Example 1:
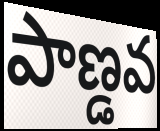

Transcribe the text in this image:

పాణ్డవ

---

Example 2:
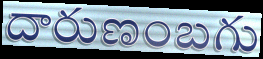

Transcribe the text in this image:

దారుణంబగు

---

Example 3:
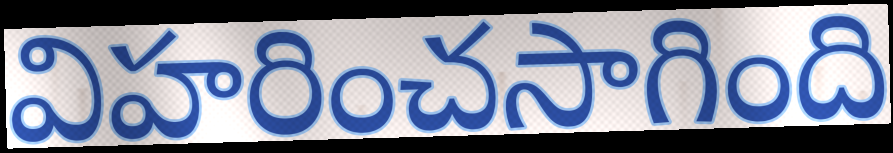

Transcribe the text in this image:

విహరించసాగింది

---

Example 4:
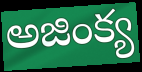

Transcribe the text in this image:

అజింక్య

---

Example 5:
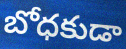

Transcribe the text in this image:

బోధకుడా